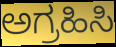
ಅಗ್ರಹಿಸಿ